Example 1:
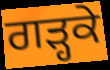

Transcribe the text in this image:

ਗੜ੍ਹਕੇ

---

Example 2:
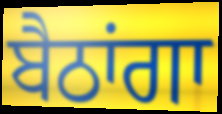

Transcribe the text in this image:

ਬੈਠਾਂਗਾ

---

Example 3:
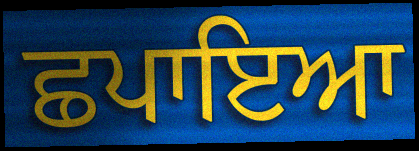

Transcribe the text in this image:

ਛਪਾਇਆ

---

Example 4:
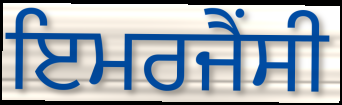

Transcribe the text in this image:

ਇਮਰਜੈਂਸੀ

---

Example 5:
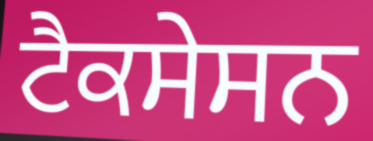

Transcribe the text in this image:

ਟੈਕਸੇਸਨ